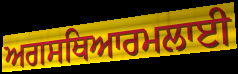
ਅਗਸਥਿਆਰਮਲਾਈ